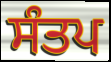
ਸੰਤਪ